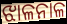
ଝାଳନାଳ